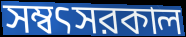
সম্বৎসরকাল